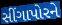
સીંગાપોરને